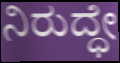
ನಿರುದ್ಧೇ